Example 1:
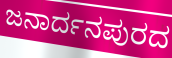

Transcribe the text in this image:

ಜನಾರ್ದನಪುರದ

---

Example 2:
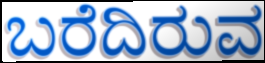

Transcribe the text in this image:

ಬರೆದಿರುವ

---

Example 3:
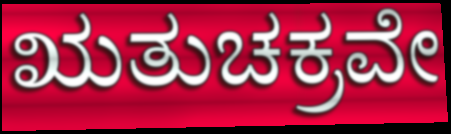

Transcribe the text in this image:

ಋತುಚಕ್ರವೇ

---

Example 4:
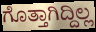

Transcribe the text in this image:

ಗೊತ್ತಾಗಿದ್ದಿಲ್ಲ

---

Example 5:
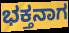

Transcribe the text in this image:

ಭಕ್ತನಾಗ